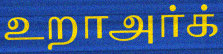
உறாஅர்க்